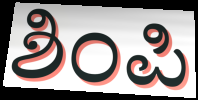
ಶಿಂಪಿ